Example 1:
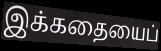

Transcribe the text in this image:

இக்கதையைப்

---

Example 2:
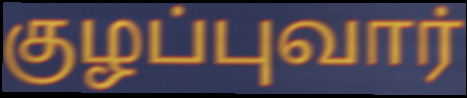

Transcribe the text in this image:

குழப்புவார்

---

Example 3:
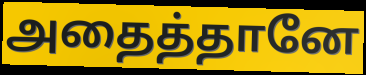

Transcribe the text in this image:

அதைத்தானே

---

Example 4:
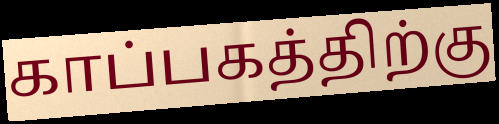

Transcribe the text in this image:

காப்பகத்திற்கு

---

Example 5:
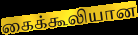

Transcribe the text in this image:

கைக்கூலியான